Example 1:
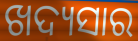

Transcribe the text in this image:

ଖଦ୍ୟସାର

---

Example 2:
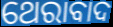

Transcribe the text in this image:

ଥେରାବାଦ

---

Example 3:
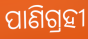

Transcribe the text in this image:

ପାଣିଗ୍ରହୀ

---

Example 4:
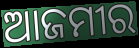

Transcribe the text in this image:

ଆଜମୀର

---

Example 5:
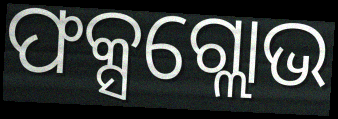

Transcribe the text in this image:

ଫକ୍ସଗ୍ଲୋଭ